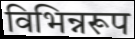
विभिन्नरूप